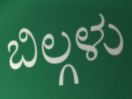
ಬಿಲ್ಗಳು